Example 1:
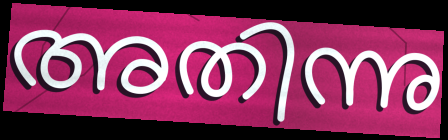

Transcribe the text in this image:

അതിന്നു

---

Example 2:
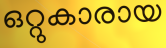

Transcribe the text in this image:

ഒറ്റുകാരായ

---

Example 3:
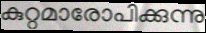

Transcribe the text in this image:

കുറ്റമാരോപിക്കുന്നു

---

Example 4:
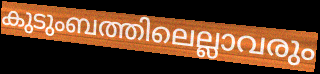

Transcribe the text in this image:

കുടുംബത്തിലെല്ലാവരും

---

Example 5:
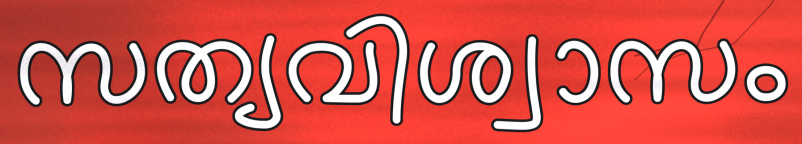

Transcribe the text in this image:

സത്യവിശ്വാസം